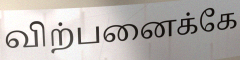
விற்பனைக்கே